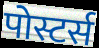
पोस्टर्स